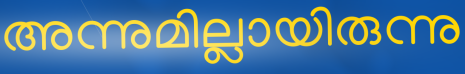
അന്നുമില്ലായിരുന്നു